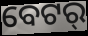
ବେଟର୍